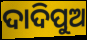
ଦାଦିପୁଅ